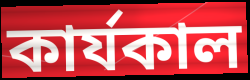
কার্যকাল